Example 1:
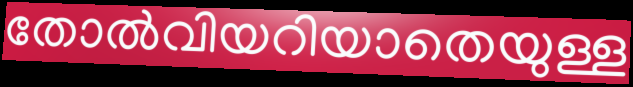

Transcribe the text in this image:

തോൽവിയറിയാതെയുള്ള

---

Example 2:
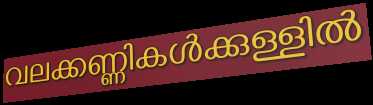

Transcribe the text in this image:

വലക്കണ്ണികൾക്കുള്ളിൽ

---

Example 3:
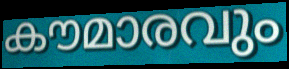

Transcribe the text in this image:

കൗമാരവും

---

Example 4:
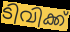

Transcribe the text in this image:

ടിവിക്ക്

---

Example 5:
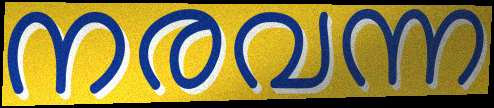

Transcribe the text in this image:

നരവന്ന